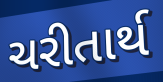
ચરીતાર્થ